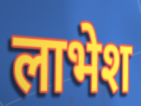
लाभेश